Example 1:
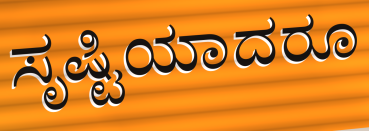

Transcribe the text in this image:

ಸೃಷ್ಟಿಯಾದರೂ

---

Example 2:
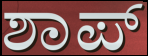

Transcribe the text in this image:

ಶಾಪ್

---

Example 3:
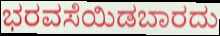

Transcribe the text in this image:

ಭರವಸೆಯಿಡಬಾರದು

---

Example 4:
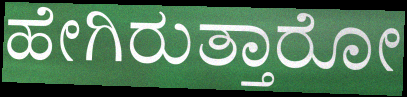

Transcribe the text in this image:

ಹೇಗಿರುತ್ತಾರೋ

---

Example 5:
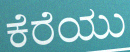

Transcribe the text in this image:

ಕೆರೆಯು